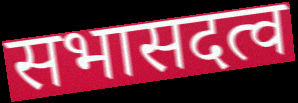
सभासदत्व